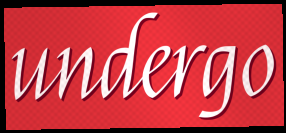
undergo